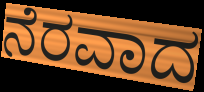
ನೆರವಾದ